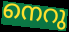
നെറു